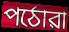
পঠোৱা